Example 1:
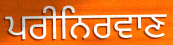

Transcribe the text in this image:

ਪਰੀਨਿਰਵਾਣ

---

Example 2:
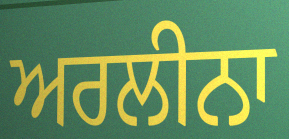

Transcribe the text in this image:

ਅਰਲੀਨਾ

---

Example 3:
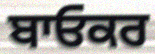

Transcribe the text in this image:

ਬਾਓਕਰ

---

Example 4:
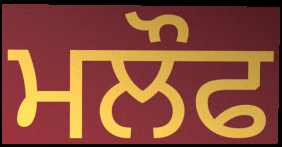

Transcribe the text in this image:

ਮਲੌਫ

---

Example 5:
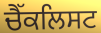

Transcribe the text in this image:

ਚੈੱਕਲਿਸਟ